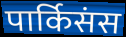
पार्किसंस